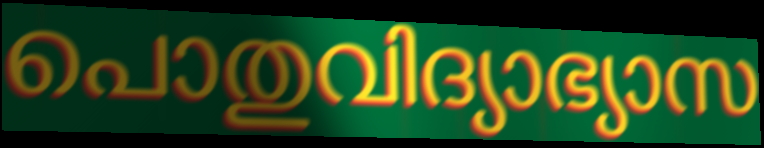
പൊതുവിദ്യാഭ്യാസ